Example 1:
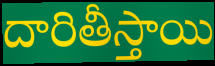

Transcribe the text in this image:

దారితీస్తాయి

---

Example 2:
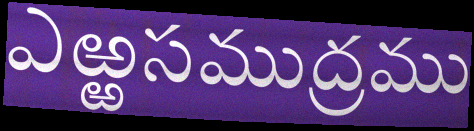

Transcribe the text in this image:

ఎఱ్ఱసముద్రము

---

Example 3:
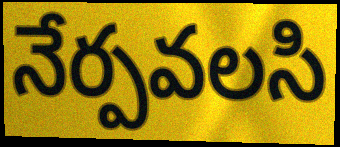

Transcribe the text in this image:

నేర్పవలసి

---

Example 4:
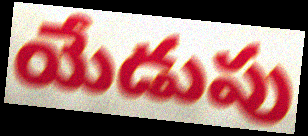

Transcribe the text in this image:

యేడుపు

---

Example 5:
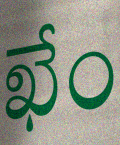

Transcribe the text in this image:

ఖేం